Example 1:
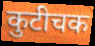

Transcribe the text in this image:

कुटीचक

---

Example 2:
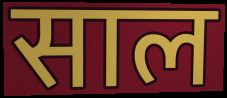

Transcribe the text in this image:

साल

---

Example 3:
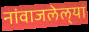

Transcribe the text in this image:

नांवाजलेल्या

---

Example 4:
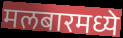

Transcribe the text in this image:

मलबारमध्ये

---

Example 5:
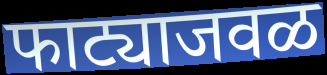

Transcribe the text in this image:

फाट्याजवळ